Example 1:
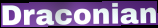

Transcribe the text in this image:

Draconian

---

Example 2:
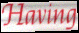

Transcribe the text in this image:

Having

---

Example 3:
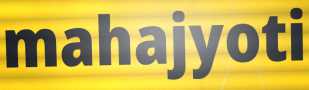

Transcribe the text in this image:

mahajyoti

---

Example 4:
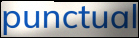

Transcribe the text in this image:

punctual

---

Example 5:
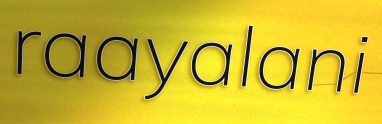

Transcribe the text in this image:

raayalani